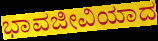
ಭಾವಜೀವಿಯಾದ